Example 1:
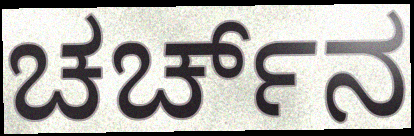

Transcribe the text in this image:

ಚರ್ಚ್‌ನ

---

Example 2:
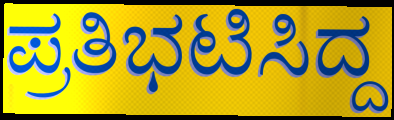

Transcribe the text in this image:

ಪ್ರತಿಭಟಿಸಿದ್ದ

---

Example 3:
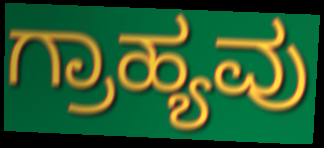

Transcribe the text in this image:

ಗ್ರಾಹ್ಯವು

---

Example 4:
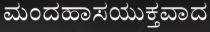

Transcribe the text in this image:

ಮಂದಹಾಸಯುಕ್ತವಾದ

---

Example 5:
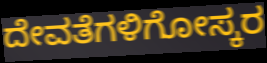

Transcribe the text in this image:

ದೇವತೆಗಳಿಗೋಸ್ಕರ